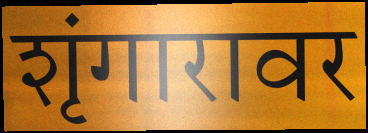
शृंगारावर